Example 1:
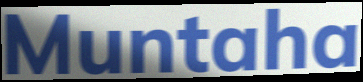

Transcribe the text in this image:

Muntaha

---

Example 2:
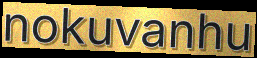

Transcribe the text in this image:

nokuvanhu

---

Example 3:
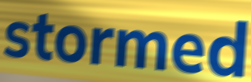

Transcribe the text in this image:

stormed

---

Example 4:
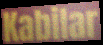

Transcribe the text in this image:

Kabilar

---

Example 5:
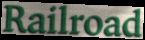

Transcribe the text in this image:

Railroad